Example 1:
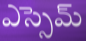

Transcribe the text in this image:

ఎస్సెమ్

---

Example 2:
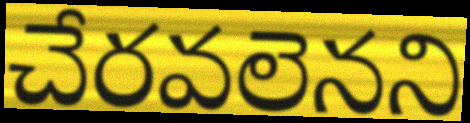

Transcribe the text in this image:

చేరవలెనని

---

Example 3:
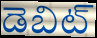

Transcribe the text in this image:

డెబిట్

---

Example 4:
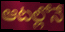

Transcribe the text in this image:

ఆటల్లోనే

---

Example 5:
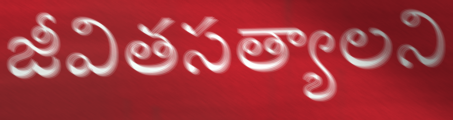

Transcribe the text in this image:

జీవితసత్యాలని